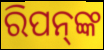
ରିପନ୍‍ଙ୍କ